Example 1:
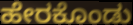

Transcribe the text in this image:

ಹೇರಕೊಂಡು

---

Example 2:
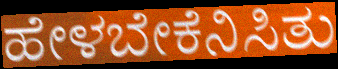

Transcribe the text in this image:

ಹೇಳಬೇಕೆನಿಸಿತು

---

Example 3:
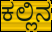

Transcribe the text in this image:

ಕಲ್ಲಿನ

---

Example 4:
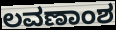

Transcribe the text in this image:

ಲವಣಾಂಶ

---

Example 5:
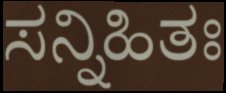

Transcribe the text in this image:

ಸನ್ನಿಹಿತಃ